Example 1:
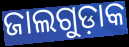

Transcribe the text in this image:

ଜାଲଗୁଡ଼ାକ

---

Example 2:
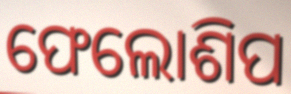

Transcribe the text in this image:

ଫେଲୋଶିପ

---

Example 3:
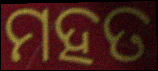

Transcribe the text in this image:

ମହତ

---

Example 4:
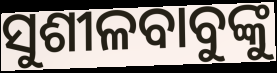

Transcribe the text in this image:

ସୁଶୀଳବାବୁଙ୍କୁ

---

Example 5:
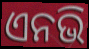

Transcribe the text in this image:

ଏନଭି